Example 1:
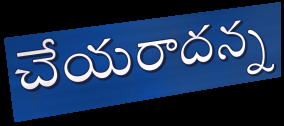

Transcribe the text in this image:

చేయరాదన్న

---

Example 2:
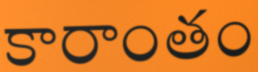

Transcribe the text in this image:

కారాంతం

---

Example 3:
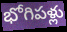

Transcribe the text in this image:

భోగిపళ్లు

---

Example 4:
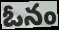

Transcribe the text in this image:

ఓనం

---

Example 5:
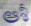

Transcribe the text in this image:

ఆశీ